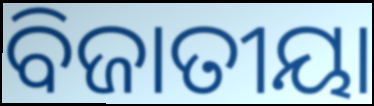
ବିଜାତୀୟା